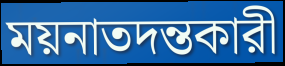
ময়নাতদন্তকারী